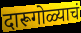
दारूगोळ्याचं